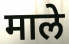
माले